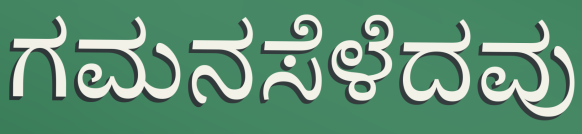
ಗಮನಸೆಳೆದವು